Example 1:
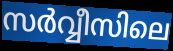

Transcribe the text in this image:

സർവ്വീസിലെ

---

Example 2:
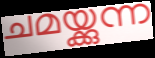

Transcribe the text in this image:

ചമയ്ക്കുന്ന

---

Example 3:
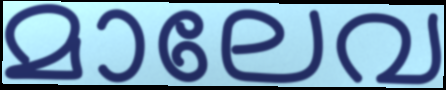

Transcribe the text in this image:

മാലേവ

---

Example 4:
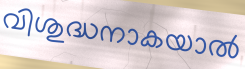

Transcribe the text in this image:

വിശുദ്ധനാകയാൽ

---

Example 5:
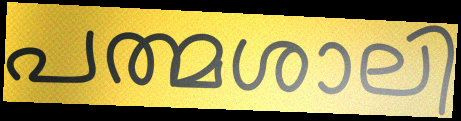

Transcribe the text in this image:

പത്മശാലി